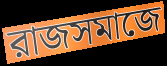
রাজসমাজে